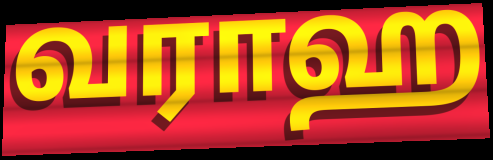
வராஹ